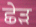
ਛੇੜ